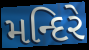
મન્દિરે